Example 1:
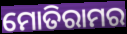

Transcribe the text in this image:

ମୋତିରାମର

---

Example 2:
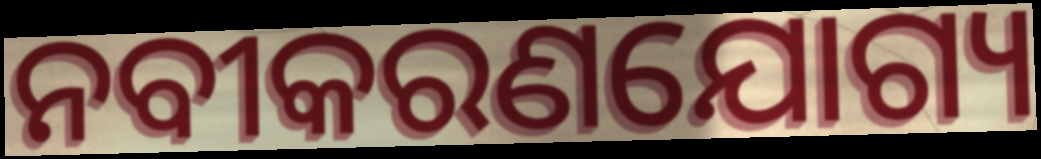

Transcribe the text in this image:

ନବୀକରଣଯୋଗ୍ୟ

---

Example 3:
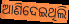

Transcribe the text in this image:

ଆଣିଦେଇଥିଲି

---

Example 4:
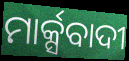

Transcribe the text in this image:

ମାର୍କ୍ସବାଦୀ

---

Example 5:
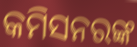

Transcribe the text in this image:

କମିସନରଙ୍କ